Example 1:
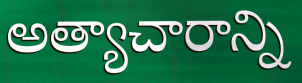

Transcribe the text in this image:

అత్యాచారాన్ని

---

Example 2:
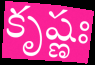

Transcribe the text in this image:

కృష్ణః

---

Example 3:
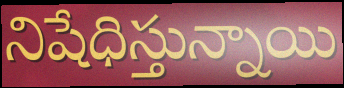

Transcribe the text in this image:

నిషేధిస్తున్నాయి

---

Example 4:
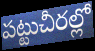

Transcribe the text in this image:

పట్టుచీరల్లో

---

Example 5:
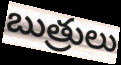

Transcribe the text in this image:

బుత్రులు